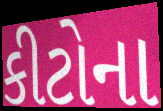
કીટોના